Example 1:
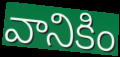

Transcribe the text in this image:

వానికిం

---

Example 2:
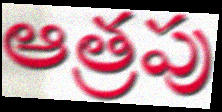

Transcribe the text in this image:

ఆత్రపు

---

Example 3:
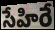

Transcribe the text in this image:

సేహిరే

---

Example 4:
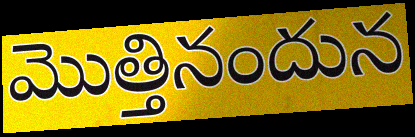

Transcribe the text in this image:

మొత్తినందున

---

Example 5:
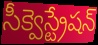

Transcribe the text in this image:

సీక్వెస్ట్రేషన్